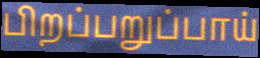
பிறப்பறுப்பாய்